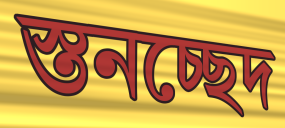
স্তনচ্ছেদ